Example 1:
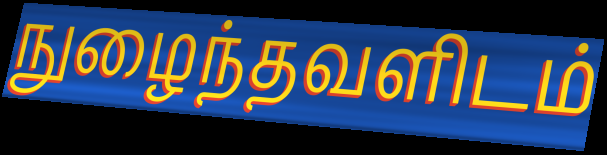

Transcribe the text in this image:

நுழைந்தவளிடம்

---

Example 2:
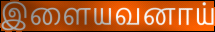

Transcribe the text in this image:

இளையவனாய்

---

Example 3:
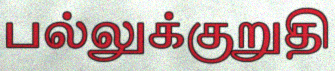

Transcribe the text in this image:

பல்லுக்குறுதி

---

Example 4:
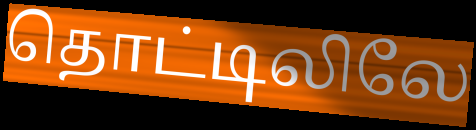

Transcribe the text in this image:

தொட்டிலிலே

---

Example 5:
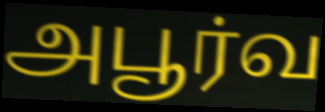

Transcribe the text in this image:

அபூர்வ